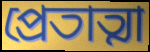
প্রেতাত্মা